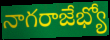
నాగరాజేభ్యో